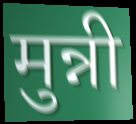
मुन्नी